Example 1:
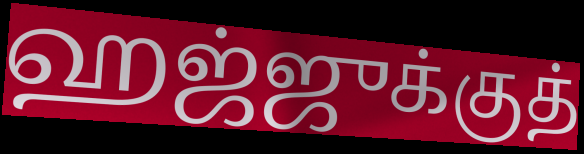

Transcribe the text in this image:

ஹஜ்ஜுக்குத்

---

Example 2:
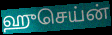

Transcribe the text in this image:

ஹுசெய்ன்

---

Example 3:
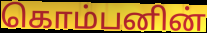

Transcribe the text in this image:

கொம்பனின்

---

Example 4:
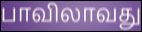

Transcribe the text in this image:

பாவிலாவது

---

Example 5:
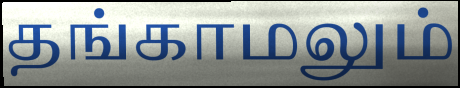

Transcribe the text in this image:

தங்காமலும்